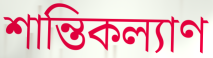
শান্তিকল্যাণ